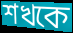
শখকে